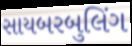
સાયબરબુલિંગ